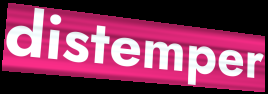
distemper